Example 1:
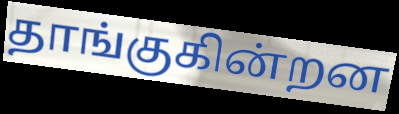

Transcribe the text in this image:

தாங்குகின்றன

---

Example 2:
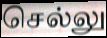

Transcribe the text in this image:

செல்லு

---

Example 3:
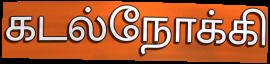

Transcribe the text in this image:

கடல்நோக்கி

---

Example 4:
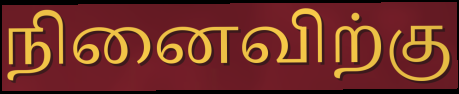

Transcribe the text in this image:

நினைவிற்கு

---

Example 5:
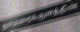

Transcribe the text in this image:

தாமரைக்குளத்தின்